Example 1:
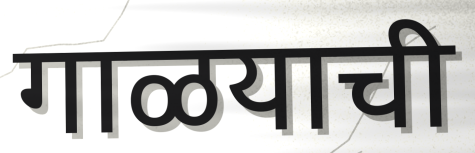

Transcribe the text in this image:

गाळयाची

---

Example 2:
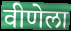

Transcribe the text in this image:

वीणेला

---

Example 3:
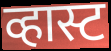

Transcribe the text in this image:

व्हास्ट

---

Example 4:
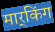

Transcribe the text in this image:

मार्किंग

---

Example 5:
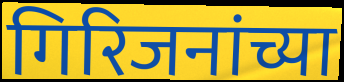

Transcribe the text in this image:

गिरिजनांच्या